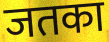
जतका